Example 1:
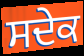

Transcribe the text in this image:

ਸਦੇਕ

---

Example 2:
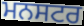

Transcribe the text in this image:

ਮਨਸਟਰ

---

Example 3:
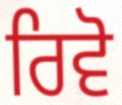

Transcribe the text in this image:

ਰਿਵੋ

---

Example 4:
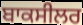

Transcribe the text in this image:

ਬਾਕਸੀਲਰ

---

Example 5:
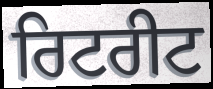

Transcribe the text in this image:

ਰਿਟਰੀਟ